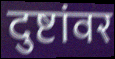
दुष्टांवर